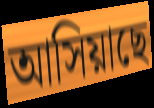
আসিয়াছে